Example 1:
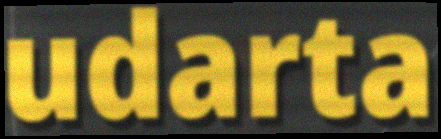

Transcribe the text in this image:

udarta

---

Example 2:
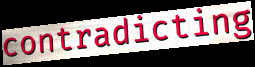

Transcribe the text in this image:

contradicting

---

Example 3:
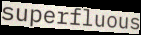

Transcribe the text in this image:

superfluous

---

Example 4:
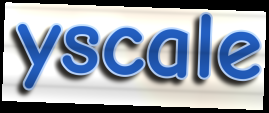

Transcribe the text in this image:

yscale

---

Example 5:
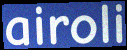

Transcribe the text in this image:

airoli